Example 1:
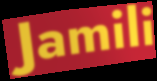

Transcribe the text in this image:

Jamili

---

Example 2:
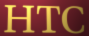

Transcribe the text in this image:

HTC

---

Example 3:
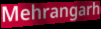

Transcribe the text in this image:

Mehrangarh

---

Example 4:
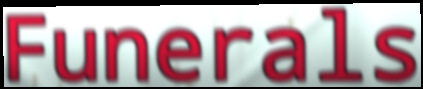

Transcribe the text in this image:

Funerals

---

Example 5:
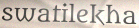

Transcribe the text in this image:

swatilekha